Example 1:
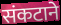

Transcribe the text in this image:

संकटाने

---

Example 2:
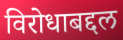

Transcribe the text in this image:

विरोधाबद्दल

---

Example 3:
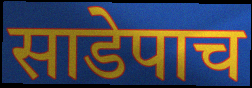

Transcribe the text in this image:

साडेपाच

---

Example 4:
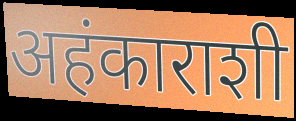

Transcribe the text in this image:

अहंकाराशी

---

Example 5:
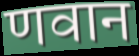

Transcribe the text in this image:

णवान